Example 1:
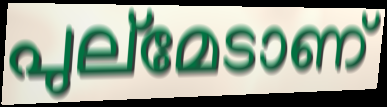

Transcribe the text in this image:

പുല്മേടാണ്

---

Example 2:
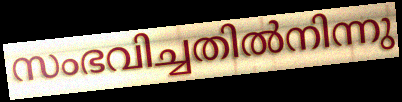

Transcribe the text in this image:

സംഭവിച്ചതിൽനിന്നു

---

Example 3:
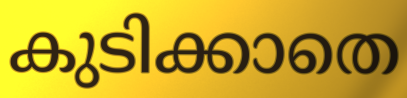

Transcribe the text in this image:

കുടിക്കാതെ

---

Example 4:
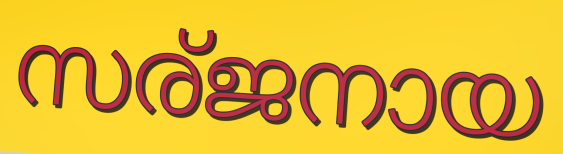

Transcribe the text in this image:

സര്ജനായ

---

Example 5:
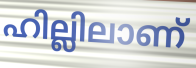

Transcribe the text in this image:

ഹില്ലിലാണ്